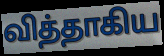
வித்தாகிய